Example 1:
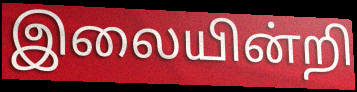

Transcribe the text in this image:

இலையின்றி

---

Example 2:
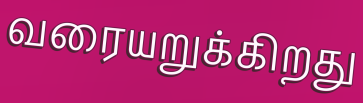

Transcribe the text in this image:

வரையறுக்கிறது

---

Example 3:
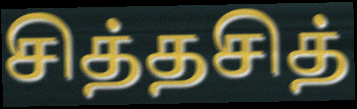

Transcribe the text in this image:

சித்தசித்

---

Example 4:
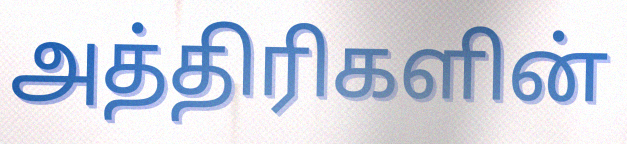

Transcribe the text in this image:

அத்திரிகளின்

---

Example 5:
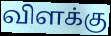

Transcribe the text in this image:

விளக்கு